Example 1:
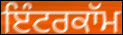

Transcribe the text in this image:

ਇੰਟਰਕਾੱਮ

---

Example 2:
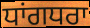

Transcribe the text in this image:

ਧਾਂਗਧਰਾ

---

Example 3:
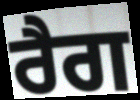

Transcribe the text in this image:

ਰੈਗ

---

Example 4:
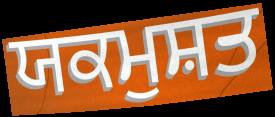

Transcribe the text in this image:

ਯਕਮੁਸ਼ਤ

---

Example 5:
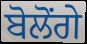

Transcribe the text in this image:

ਬੋਲੋਂਗੇ